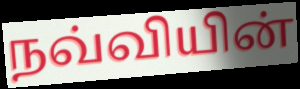
நவ்வியின்